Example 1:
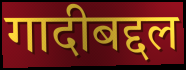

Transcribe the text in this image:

गादीबद्दल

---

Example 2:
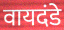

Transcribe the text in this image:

वायदंडे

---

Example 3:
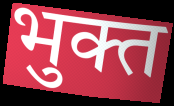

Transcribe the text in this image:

भुक्त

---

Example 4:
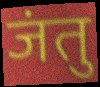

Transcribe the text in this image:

जंतु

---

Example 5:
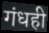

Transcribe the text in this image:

गंधही